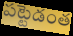
పట్టెడంత